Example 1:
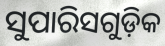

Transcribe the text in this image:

ସୁପାରିସଗୁଡ଼ିକ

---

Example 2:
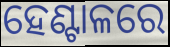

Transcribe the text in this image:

ହେଣ୍ଟାଳରେ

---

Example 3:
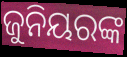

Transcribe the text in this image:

ଜୁନିୟରଙ୍କ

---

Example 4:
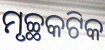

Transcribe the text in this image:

ମୃଚ୍ଛକଟିକ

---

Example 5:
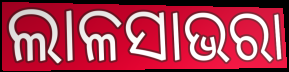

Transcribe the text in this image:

ଲାଳସାଭରା